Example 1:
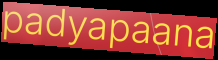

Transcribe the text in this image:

padyapaana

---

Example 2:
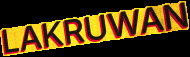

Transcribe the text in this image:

LAKRUWAN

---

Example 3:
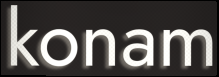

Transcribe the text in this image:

konam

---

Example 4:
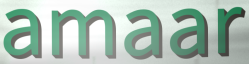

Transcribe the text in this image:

amaar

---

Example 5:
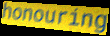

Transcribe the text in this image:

honouring